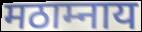
मठाम्नाय